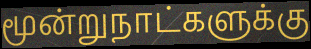
மூன்றுநாட்களுக்கு